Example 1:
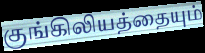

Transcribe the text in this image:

குங்கிலியத்தையும்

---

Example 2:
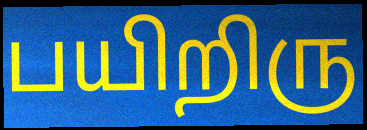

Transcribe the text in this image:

பயிறிரு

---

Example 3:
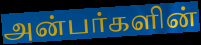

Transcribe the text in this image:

அன்பர்களின்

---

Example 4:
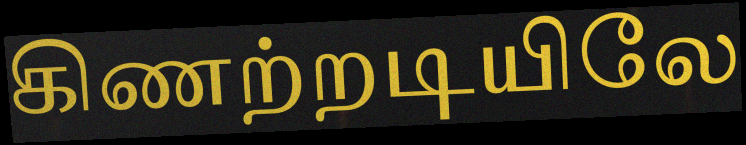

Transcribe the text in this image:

கிணற்றடியிலே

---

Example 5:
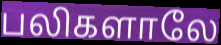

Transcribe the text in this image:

பலிகளாலே